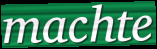
machte